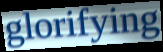
glorifying